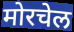
मोरचेल